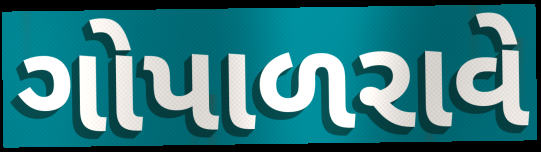
ગોપાળરાવે